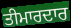
ਤੀਮਾਰਦਾਰ